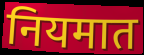
नियमात